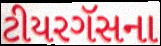
ટીયરગૅસના